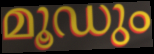
മൂഡും